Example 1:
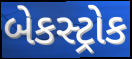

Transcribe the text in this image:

બેકસ્ટ્રોક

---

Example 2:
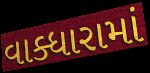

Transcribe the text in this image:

વાક્ધારામાં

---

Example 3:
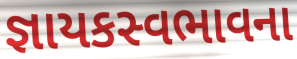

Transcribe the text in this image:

જ્ઞાયકસ્વભાવના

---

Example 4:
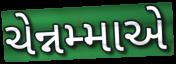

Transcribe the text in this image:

ચેન્નમ્માએ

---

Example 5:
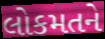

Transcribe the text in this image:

લોકમતને